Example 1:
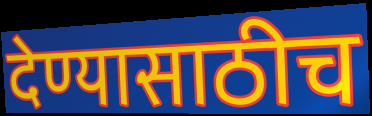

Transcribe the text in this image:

देण्यासाठीच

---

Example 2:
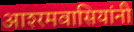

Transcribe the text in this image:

आश्रमवासियांनी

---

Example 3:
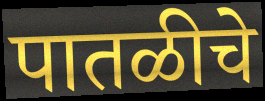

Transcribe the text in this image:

पातळीचे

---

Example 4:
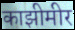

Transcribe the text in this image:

काझीमीर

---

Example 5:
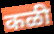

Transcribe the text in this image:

कळी